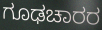
ಗೂಢಚಾರರ